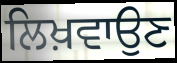
ਲਿਖ਼ਵਾਉਣ